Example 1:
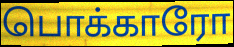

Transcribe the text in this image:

பொக்காரோ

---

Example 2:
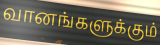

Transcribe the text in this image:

வானங்களுக்கும்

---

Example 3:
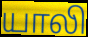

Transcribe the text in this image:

யாலி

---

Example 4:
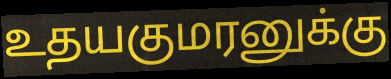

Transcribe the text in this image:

உதயகுமரனுக்கு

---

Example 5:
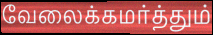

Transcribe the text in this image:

வேலைக்கமர்த்தும்